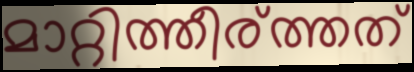
മാറ്റിത്തീര്ത്തത്